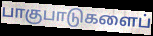
பாகுபாடுகளைப்